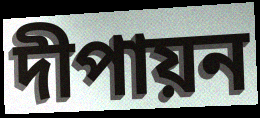
দীপায়ন